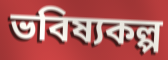
ভবিষ্যকল্প